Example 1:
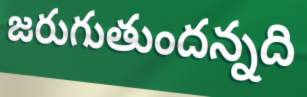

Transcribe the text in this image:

జరుగుతుందన్నది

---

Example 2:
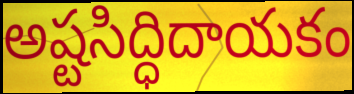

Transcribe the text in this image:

అష్టసిద్ధిదాయకం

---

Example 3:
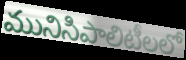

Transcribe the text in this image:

మునిసిపాలిటీలలో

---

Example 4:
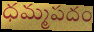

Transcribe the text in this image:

ధమ్మపదం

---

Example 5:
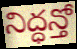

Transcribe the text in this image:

నిద్ధన్తో